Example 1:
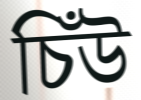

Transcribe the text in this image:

চিঁউ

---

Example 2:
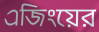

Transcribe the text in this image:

এজিংয়ের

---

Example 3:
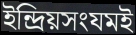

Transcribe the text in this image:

ইন্দ্রিয়সংযমই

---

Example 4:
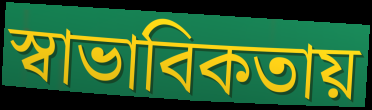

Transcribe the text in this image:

স্বাভাবিকতায়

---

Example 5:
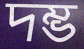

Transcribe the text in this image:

দম্ভ